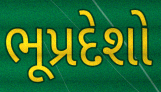
ભૂપ્રદેશો